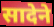
सादेने